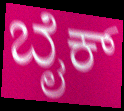
ಬೈಕ್